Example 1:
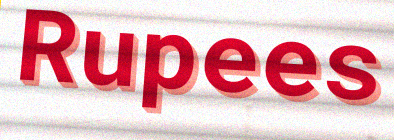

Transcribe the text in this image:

Rupees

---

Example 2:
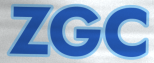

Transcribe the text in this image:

ZGC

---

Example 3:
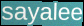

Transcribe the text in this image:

sayalee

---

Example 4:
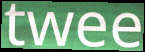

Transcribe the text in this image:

twee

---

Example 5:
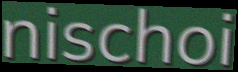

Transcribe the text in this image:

nischoi